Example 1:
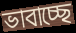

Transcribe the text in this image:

ভাবাচ্ছে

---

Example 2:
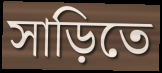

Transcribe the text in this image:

সাড়িতে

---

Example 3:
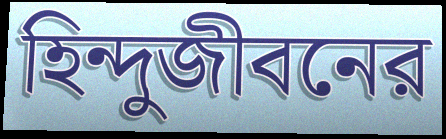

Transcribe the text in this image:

হিন্দুজীবনের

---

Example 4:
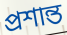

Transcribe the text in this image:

প্রশান্ত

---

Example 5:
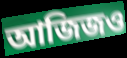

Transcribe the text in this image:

আজিজও